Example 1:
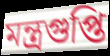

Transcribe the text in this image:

মন্ত্রগুপ্তি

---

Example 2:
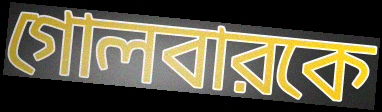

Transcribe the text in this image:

গোলবারকে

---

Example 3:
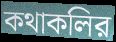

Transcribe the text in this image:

কথাকলির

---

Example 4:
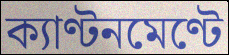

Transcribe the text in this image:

ক্যাণ্টনমেণ্টে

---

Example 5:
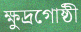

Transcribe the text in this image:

ক্ষুদ্রগোষ্ঠী